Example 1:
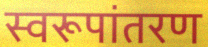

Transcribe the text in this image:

स्वरूपांतरण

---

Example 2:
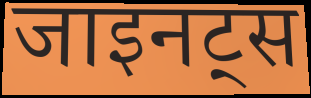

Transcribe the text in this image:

जाइनट्स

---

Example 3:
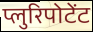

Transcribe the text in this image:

प्लुरिपोटेंट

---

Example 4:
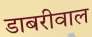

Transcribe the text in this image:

डाबरीवाल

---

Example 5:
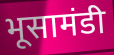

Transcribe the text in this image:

भूसामंडी